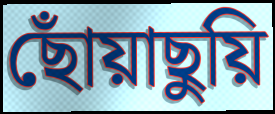
ছোঁয়াছুয়ি